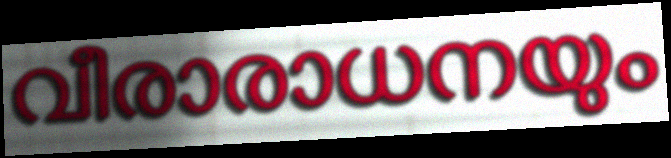
വീരാരാധനയും